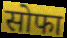
सोफा